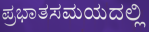
ಪ್ರಭಾತಸಮಯದಲ್ಲಿ